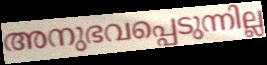
അനുഭവപ്പെടുന്നില്ല